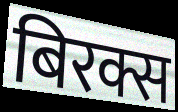
बिरक्स